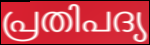
പ്രതിപദ്യ